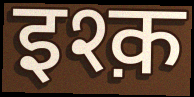
इश्क़